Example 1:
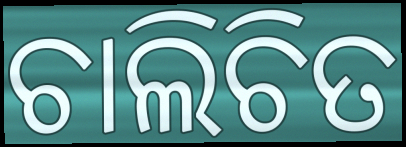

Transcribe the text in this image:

ଚାଲିଚିତ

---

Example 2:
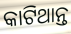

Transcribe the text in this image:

କାଟିଥାନ୍ତ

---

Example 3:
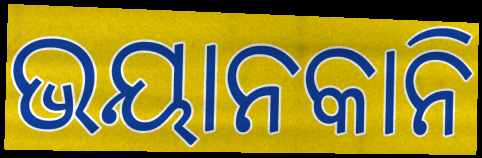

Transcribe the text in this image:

ଭୟାନକାନି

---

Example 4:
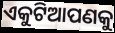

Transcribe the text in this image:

ଏକୁଟିଆପଣକୁ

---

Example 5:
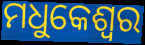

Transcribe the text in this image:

ମଧୁକେଶ୍ୱର